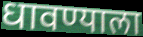
धावण्याला